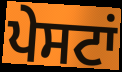
ਪੇਸਟਾਂ